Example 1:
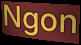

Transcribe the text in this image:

Ngon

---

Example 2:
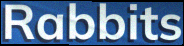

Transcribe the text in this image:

Rabbits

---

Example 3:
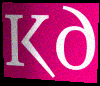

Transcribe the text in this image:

Kd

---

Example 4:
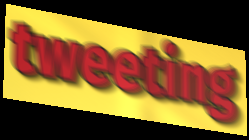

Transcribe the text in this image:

tweeting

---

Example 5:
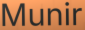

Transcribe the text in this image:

Munir